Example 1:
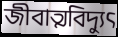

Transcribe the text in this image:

জীবাত্মবিদ্যুৎ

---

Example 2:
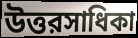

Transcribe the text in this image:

উত্তরসাধিকা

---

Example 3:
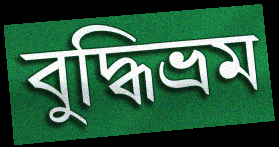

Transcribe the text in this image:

বুদ্ধিভ্রম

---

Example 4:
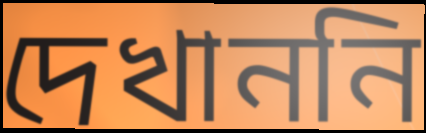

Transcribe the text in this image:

দেখাননি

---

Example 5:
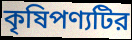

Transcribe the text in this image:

কৃষিপণ্যটির